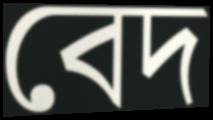
বেদ